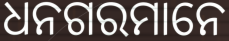
ଧନଗରମାନେ